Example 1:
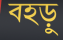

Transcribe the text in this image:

বহড়ু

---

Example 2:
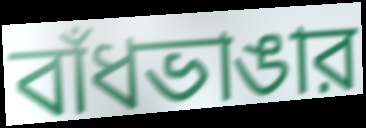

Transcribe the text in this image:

বাঁধভাঙার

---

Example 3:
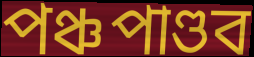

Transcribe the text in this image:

পঞ্চপাণ্ডব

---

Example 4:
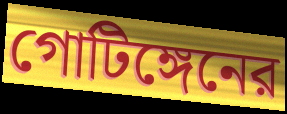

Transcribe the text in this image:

গোটিঙ্গেনের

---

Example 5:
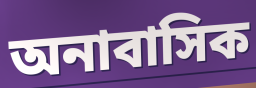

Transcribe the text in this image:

অনাবাসিক